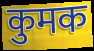
कुमक